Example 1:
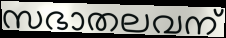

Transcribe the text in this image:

സഭാതലവന്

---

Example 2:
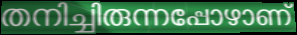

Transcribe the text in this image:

തനിച്ചിരുന്നപ്പോഴാണ്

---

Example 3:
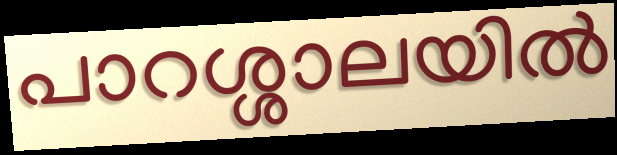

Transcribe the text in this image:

പാറശ്ശാലയിൽ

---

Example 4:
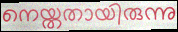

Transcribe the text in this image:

നെയ്തതായിരുന്നു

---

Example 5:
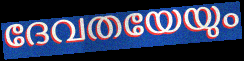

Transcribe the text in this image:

ദേവതയേയും